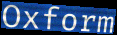
Oxform